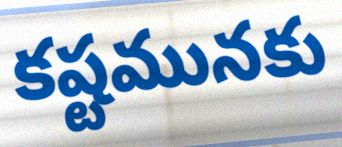
కష్టమునకు